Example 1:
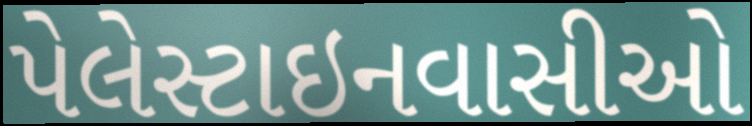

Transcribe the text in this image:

પેલેસ્ટાઇનવાસીઓ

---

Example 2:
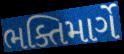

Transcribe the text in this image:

ભક્તિમાર્ગે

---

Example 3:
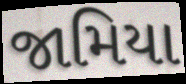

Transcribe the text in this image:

જામિયા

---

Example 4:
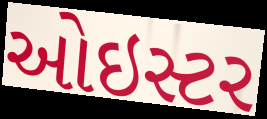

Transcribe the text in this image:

ઓઇસ્ટર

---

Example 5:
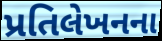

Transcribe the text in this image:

પ્રતિલેખનના